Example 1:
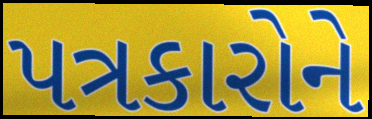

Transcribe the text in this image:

પત્રકારોને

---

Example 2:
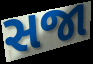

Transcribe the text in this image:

સજા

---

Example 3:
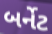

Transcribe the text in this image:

બર્નેટ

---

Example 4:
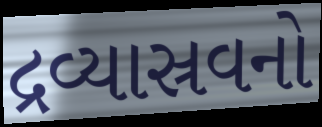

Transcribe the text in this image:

દ્રવ્યાસ્રવનો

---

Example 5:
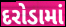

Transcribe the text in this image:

દરોડામાં